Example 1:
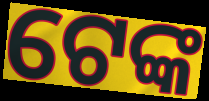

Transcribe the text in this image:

ଟେଙ୍କ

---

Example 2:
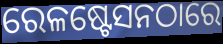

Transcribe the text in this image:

ରେଳଷ୍ଟେସନଠାରେ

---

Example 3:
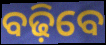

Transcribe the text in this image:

ବଢ଼ିବେ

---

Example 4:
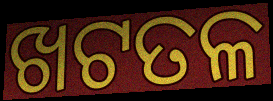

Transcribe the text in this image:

ଖଟତଳ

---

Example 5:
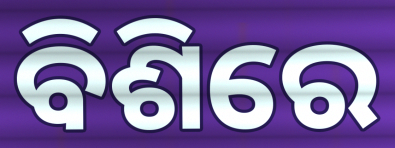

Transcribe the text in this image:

ବିଶିରେ